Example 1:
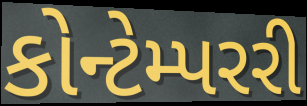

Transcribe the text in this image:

કોન્ટેમ્પરરી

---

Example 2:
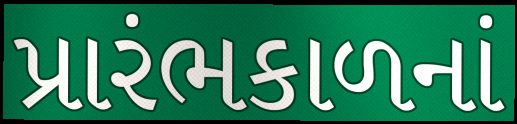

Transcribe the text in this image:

પ્રારંભકાળનાં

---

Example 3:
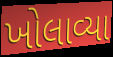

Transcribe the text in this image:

ખોલાવ્યા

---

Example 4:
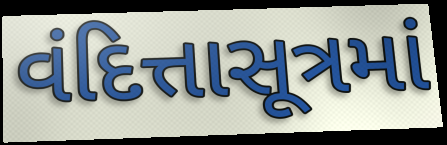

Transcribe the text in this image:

વંદિત્તાસૂત્રમાં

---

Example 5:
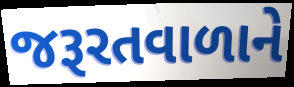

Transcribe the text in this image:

જરૂરતવાળાને